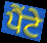
ਪੈਂਟੇ